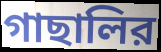
গাছালির